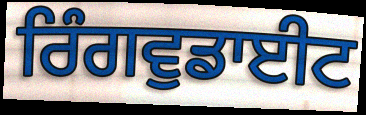
ਰਿੰਗਵੁਡਾਈਟ